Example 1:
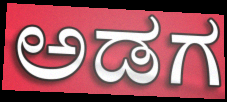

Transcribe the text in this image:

ಅಡಗ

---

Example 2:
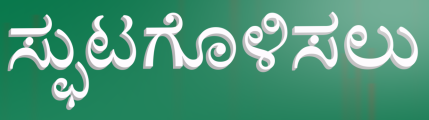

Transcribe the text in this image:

ಸ್ಫುಟಗೊಳಿಸಲು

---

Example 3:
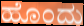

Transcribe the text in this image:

ಹೊಂದು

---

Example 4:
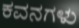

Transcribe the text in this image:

ಕವನಗಳು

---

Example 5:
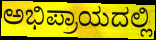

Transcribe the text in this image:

ಅಭಿಪ್ರಾಯದಲ್ಲಿ